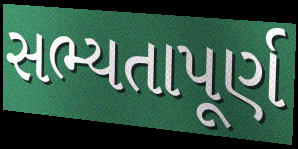
સભ્યતાપૂર્ણ